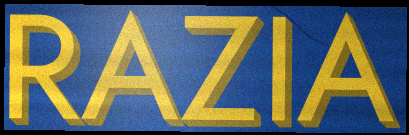
RAZIA